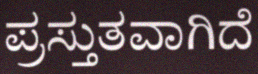
ಪ್ರಸ್ತುತವಾಗಿದೆ